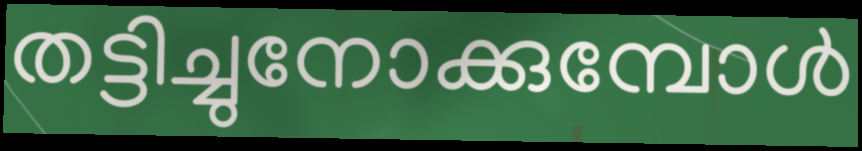
തട്ടിച്ചുനോക്കുമ്പോൾ